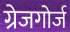
ग्रेजगोर्ज